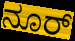
ನೂರ್